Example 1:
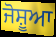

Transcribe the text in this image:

ਜੋਸ਼ੂਆ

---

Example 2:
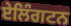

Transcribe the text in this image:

ਏਲਿੰਗਟਨ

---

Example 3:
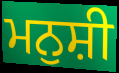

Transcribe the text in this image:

ਮਨੁਸ਼ੀ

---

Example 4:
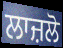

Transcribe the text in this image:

ਲਾਜ਼ਲੋ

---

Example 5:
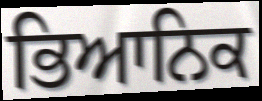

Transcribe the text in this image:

ਭਿਆਨਿਕ